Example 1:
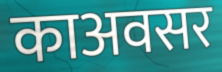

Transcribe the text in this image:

काअवसर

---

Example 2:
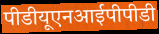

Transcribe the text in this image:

पीडीयूएनआईपीपीडी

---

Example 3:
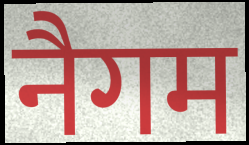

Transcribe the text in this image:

नैगम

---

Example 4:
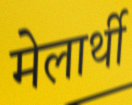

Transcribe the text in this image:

मेलार्थी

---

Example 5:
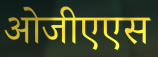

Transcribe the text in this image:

ओजीएएस